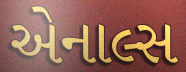
એનાલ્સ